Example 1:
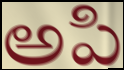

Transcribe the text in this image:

అపి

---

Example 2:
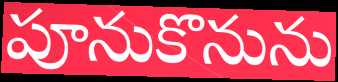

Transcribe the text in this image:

పూనుకొనును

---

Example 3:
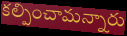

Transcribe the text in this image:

కల్పించామన్నారు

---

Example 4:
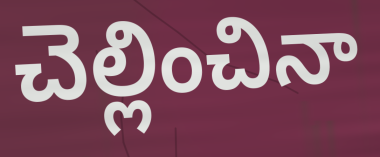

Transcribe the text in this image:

చెల్లించినా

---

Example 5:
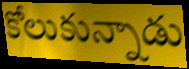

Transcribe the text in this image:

కోలుకున్నాడు